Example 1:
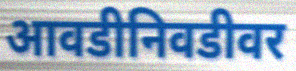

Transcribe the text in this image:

आवडीनिवडीवर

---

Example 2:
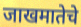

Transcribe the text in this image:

जाखमातेचे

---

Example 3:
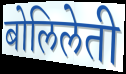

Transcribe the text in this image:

बोलिलेती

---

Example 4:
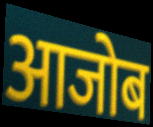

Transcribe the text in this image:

आजोब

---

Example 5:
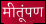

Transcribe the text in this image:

मीतूंपण